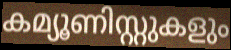
കമ്യൂണിസ്റ്റുകളും